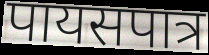
पायसपात्र